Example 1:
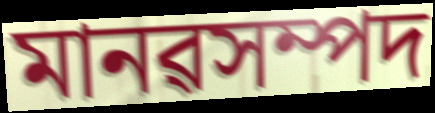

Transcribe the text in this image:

মানৱসম্পদ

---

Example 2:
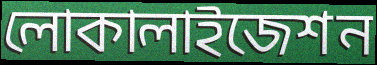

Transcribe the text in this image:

লোকালাইজেশন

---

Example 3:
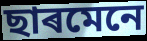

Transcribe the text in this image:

ছাৰমেনে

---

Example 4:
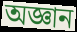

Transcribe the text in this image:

অজ্ঞান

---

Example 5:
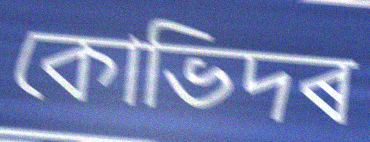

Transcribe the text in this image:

কোভিদৰ